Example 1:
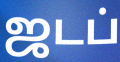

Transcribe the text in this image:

ஜடப்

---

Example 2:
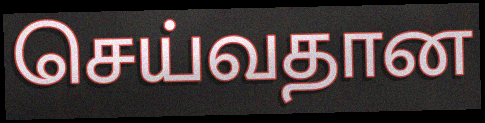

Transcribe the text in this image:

செய்வதான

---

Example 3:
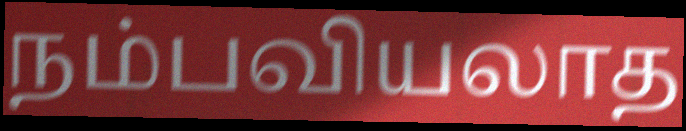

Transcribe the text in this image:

நம்பவியலாத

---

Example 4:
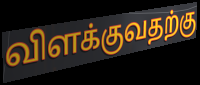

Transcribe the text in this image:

விளக்குவதற்கு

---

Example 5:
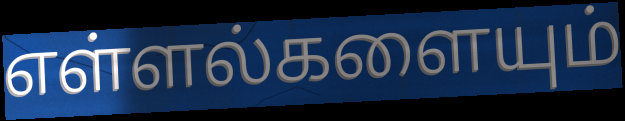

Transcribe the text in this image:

எள்ளல்களையும்